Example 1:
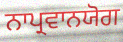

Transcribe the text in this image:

ਨਾਪ੍ਰਵਾਨਯੋਗ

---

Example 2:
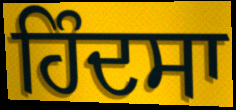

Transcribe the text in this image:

ਹਿੰਦਸਾ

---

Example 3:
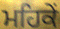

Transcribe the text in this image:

ਮਹਿਕੇਂ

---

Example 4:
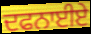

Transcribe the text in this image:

ਦਫਨਾਈਏ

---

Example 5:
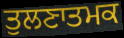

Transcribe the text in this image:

ਤੁਲਣਾਤਮਕ